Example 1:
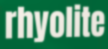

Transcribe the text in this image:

rhyolite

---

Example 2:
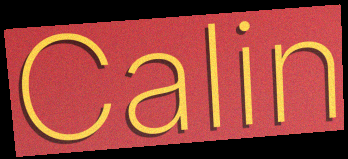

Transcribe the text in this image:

Calin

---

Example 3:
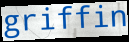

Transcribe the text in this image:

griffin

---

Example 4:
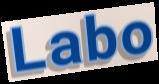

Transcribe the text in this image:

Labo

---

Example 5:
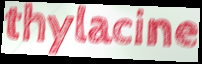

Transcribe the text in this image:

thylacine